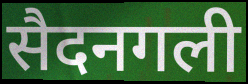
सैदनगली